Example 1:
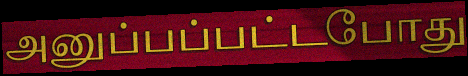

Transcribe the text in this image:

அனுப்பப்பட்டபோது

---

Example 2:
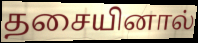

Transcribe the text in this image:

தசையினால்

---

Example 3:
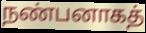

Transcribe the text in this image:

நண்பனாகத்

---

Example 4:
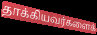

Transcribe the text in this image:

தாக்கியவர்களைக்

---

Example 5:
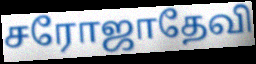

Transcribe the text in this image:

சரோஜாதேவி